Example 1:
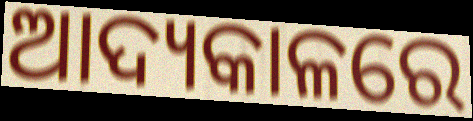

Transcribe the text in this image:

ଆଦ୍ୟକାଳରେ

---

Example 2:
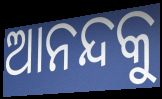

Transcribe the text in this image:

ଆନନ୍ଦକୁ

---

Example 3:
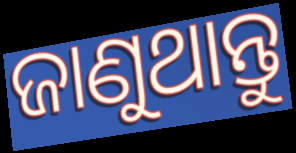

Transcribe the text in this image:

ଜାଣୁଥାନ୍ତୁ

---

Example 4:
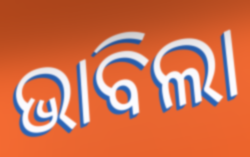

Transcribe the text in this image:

ଭାବିଲା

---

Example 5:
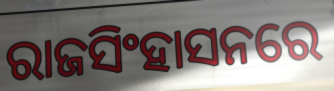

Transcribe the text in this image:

ରାଜସିଂହାସନରେ